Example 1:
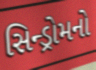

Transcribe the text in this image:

સિન્ડ્રોમનો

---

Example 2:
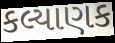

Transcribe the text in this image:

કલ્યાણક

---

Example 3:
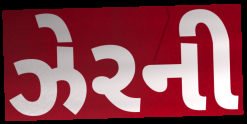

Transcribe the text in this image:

ઝેરની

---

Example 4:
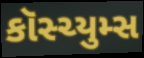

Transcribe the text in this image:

કૉસ્ચ્યુમ્સ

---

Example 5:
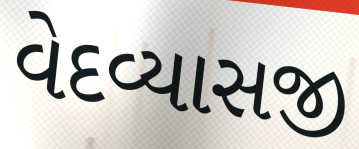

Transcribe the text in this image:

વેદવ્યાસજી